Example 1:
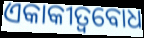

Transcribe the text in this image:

ଏକାକୀତ୍ୱବୋଧ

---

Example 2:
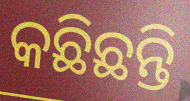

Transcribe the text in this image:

କଛିଛନ୍ତି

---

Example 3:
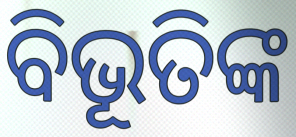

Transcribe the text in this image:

ବିଭୂତିଙ୍କ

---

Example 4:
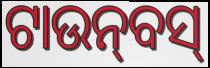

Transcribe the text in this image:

ଟାଉନ୍‍ବସ୍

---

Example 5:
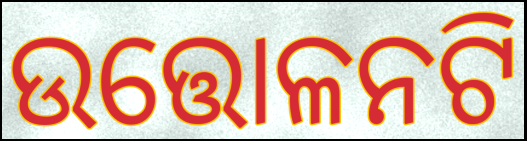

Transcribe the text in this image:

ଉତ୍ତୋଳନଟି